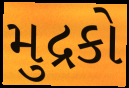
મુદ્રકો